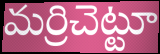
మర్రిచెట్టూ